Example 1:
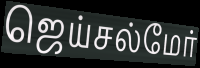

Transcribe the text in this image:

ஜெய்சல்மேர்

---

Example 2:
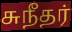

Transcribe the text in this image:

சுநீதர்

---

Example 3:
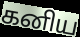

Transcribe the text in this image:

கனிய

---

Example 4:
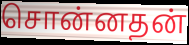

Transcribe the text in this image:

சொன்னதன்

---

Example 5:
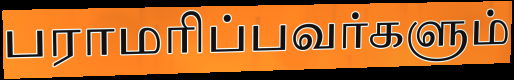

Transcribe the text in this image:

பராமரிப்பவர்களும்